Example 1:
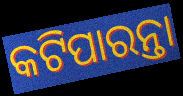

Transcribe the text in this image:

କଟିପାରନ୍ତା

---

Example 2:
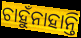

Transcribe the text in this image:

ଚାହୁଁନାହାନ୍ତି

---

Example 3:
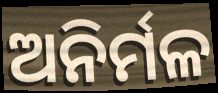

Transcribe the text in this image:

ଅନିର୍ମଳ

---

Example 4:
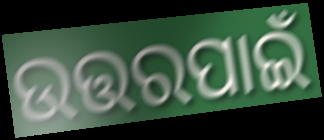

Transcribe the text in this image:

ଉତ୍ତରପାଇଁ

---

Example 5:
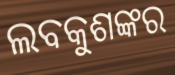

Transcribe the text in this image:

ଲବକୁଶଙ୍କର